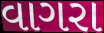
વાગરા